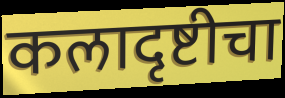
कलादृष्टीचा